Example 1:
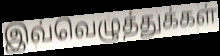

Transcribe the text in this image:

இவ்வெழுத்துக்கள்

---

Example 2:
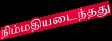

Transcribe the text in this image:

நிம்மதியடைந்தது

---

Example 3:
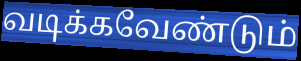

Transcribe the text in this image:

வடிக்கவேண்டும்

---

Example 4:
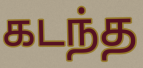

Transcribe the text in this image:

கடந்த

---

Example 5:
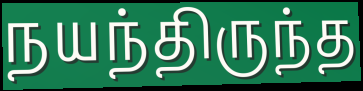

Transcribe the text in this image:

நயந்திருந்த